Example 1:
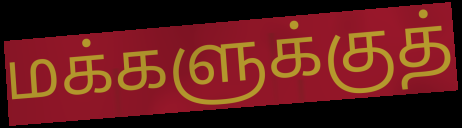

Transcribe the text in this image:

மக்களுக்குத்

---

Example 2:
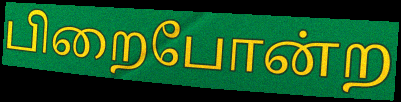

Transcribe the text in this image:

பிறைபோன்ற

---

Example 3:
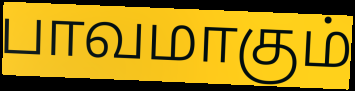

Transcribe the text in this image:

பாவமாகும்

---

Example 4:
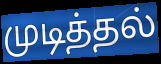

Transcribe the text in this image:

முடித்தல்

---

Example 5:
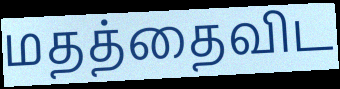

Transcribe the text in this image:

மதத்தைவிட